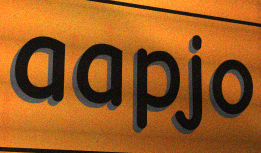
aapjo